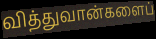
வித்துவான்களைப்